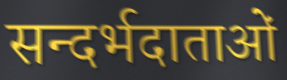
सन्दर्भदाताओं